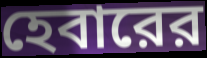
হেবারের